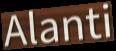
Alanti